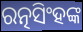
ରତ୍ନସିଂହଙ୍କ